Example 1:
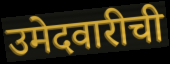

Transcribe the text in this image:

उमेदवारीची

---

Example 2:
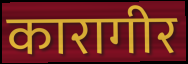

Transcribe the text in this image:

कारागीर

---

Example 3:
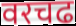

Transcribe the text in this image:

वरचढ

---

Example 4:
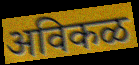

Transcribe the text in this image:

अविकळ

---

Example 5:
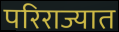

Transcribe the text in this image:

परिराज्यात